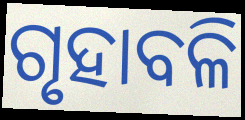
ଗୃହାବଳି